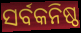
ସର୍ବକନିଷ୍ଠ